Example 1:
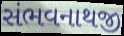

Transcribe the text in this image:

સંભવનાથજી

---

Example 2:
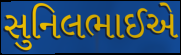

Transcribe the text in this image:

સુનિલભાઈએ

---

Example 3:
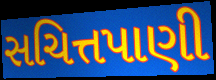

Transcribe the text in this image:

સચિત્તપાણી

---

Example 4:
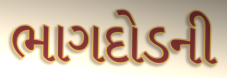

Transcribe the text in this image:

ભાગદોડની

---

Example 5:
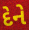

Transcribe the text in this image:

દેને